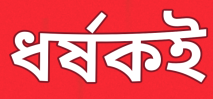
ধর্ষকই